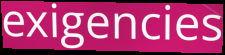
exigencies